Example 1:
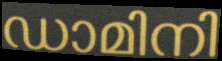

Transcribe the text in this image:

ഡാമിനി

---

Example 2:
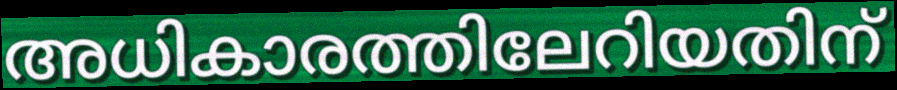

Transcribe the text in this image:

അധികാരത്തിലേറിയതിന്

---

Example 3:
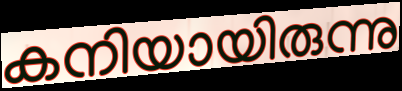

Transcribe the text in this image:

കനിയായിരുന്നു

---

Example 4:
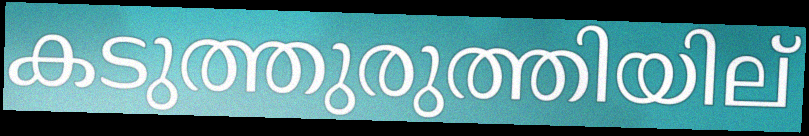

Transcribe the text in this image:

കടുത്തുരുത്തിയില്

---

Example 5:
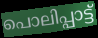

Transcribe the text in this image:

പൊലിപ്പാട്ട്